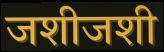
जशीजशी